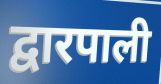
द्वारपाली